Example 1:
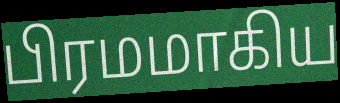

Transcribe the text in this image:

பிரமமாகிய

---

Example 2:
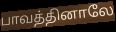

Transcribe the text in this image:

பாவத்தினாலே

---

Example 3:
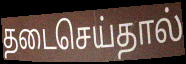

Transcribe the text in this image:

தடைசெய்தால்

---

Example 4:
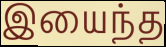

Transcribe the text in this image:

இயைந்த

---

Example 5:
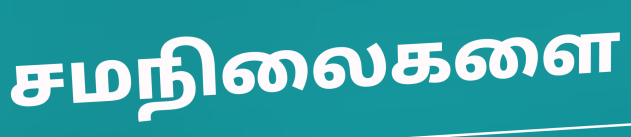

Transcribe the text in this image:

சமநிலைகளை